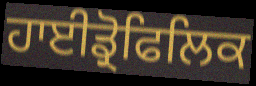
ਹਾਈਡ੍ਰੋਫਿਲਿਕ